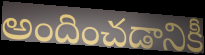
అందించడానికీ